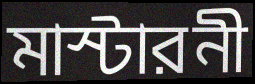
মাস্টারনী